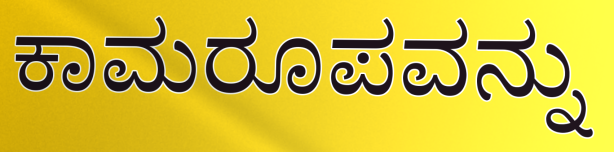
ಕಾಮರೂಪವನ್ನು